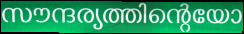
സൗന്ദര്യത്തിന്റെയോ